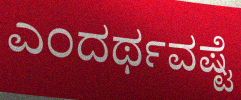
ಎಂದರ್ಥವಷ್ಟೆ